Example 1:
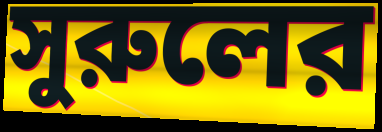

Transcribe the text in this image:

সুরুলের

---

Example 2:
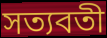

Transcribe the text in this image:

সত্যবতী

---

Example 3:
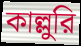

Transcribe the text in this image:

কাল্লুরি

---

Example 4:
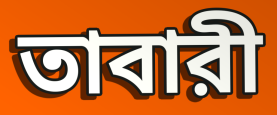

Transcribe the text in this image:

তাবারী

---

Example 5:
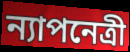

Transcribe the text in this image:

ন্যাপনেত্রী